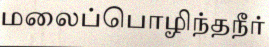
மலைப்பொழிந்தநீர்